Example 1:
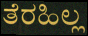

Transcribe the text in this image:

ತೆರಹಿಲ್ಲ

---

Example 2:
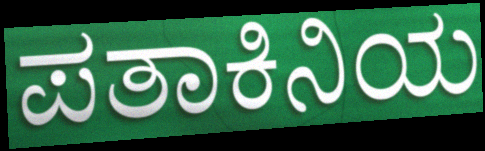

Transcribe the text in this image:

ಪತಾಕಿನಿಯ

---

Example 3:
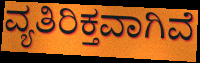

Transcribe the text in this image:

ವ್ಯತಿರಿಕ್ತವಾಗಿವೆ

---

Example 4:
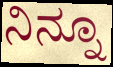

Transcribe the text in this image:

ನಿನ್ನೂ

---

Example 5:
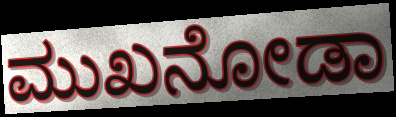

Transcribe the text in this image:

ಮುಖನೋಡಾ